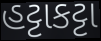
હટ્ટાકટ્ટા